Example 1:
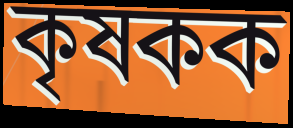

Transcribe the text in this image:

কৃষকক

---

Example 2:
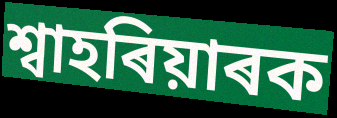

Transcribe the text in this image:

শ্বাহৰিয়াৰক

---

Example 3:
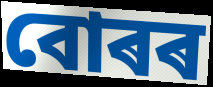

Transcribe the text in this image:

বোৰৰ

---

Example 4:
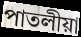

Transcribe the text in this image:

পাতলীয়া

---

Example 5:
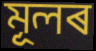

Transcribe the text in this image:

মূলৰ